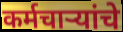
कर्मचाऱ्यांचे